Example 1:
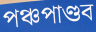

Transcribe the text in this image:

পঞ্চপাণ্ডব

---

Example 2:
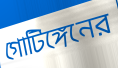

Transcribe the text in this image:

গোটিঙ্গেনের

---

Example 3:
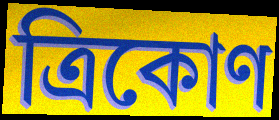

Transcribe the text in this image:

ত্রিকোণ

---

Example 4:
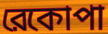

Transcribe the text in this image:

রেকোপা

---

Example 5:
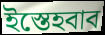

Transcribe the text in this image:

ইস্তেহবাব